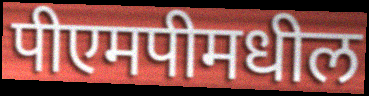
पीएमपीमधील